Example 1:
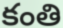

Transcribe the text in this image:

కంతి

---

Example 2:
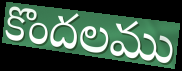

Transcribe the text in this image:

కొందలము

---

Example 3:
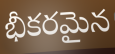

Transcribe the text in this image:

భీకరమైన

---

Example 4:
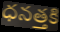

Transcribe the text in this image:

ధనత్తకి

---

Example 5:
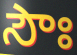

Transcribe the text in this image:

సౌః